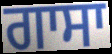
ਗਾਸਾ